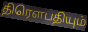
திரெளபதியும்